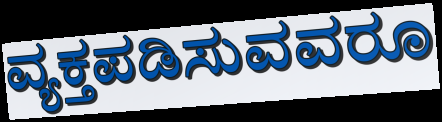
ವ್ಯಕ್ತಪಡಿಸುವವರೂ